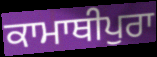
ਕਾਮਾਥੀਪੁਰਾ